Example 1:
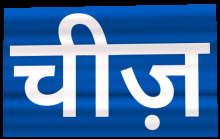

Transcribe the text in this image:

चीज़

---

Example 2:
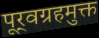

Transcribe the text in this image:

पूर्वग्रहमुक्त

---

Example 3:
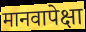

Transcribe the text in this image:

मानवापेक्षा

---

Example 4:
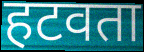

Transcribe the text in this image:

हटवता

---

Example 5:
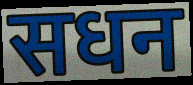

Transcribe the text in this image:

सधन